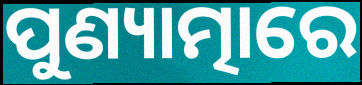
ପୁଣ୍ୟାତ୍ମାରେ